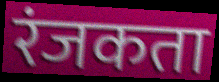
रंजकता